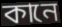
কানে